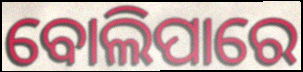
ବୋଲିପାରେ